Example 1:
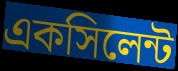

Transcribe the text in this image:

একসিলেন্ট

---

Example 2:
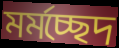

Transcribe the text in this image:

মর্মচ্ছেদ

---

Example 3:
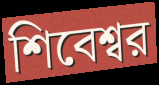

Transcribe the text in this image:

শিবেশ্বর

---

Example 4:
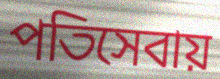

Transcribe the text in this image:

পতিসেবায়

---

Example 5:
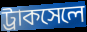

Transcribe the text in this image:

ট্রাকসেলে